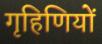
गृहिणियों